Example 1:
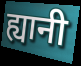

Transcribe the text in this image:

ह्यानी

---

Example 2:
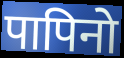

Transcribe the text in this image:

पापिनो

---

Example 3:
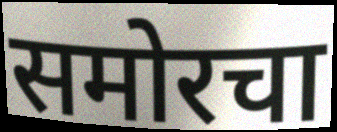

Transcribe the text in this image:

समोरचा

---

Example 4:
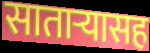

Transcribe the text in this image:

साताऱ्यासह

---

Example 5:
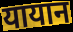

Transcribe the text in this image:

यायान